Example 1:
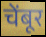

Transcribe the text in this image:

चेंबूर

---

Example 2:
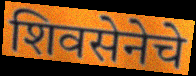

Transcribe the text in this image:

शिवसेनेचे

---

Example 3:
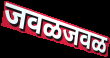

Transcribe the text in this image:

जवळजवळ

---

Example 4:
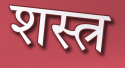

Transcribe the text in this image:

शस्त्र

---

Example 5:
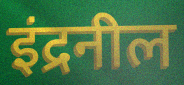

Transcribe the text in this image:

इंद्रनील